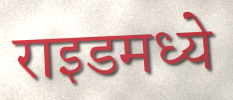
राइडमध्ये